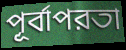
পূর্বাপরতা